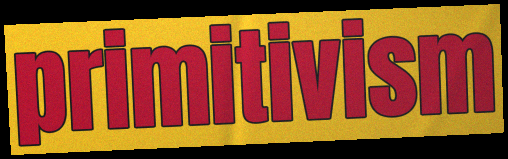
primitivism